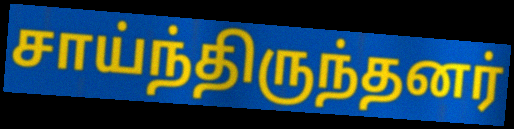
சாய்ந்திருந்தனர்